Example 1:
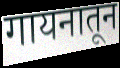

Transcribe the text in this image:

गायनातून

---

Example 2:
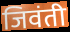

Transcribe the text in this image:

जिवंती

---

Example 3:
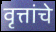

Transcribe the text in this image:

वृत्तांचे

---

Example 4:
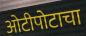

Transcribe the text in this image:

ओटीपोटाचा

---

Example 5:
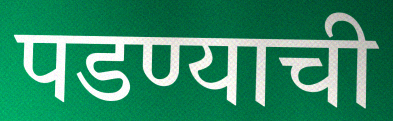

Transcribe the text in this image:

पडण्याची